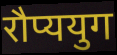
रौप्ययुग